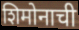
शिमोनाची